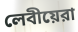
লেবীয়েরা